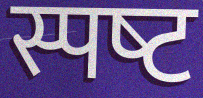
स्‍पष्‍ट